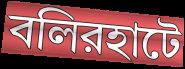
বলিরহাটে